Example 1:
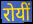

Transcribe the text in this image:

रोयीं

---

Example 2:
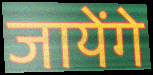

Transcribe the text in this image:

जायेंगे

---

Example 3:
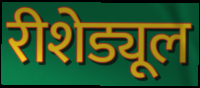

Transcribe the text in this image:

रीशेड्यूल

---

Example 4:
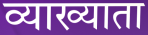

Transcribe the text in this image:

व्‍याख्‍याता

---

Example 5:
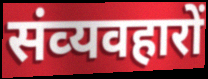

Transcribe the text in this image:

संव्‍यवहारों